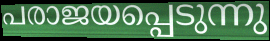
പരാജയപ്പെടുന്നു